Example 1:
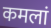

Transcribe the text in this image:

कमलां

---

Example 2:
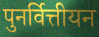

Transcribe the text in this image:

पुनर्वित्तीयन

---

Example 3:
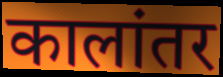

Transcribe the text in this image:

कालांतर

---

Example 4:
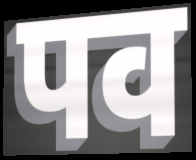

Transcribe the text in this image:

पव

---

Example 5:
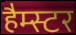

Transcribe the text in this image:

हैम्स्टर